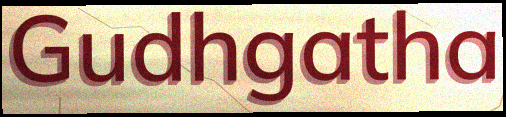
Gudhgatha